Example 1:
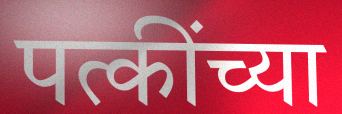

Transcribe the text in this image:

पत्कींच्या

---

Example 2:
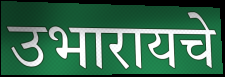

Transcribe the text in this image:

उभारायचे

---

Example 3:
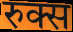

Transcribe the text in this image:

रुक्स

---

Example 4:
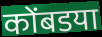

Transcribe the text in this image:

कोंबडया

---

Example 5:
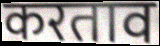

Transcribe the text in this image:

करताव